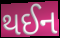
થઈન